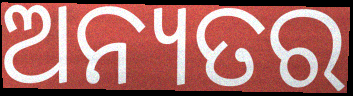
ଅନ୍ୟତର